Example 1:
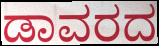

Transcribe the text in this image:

ಡಾವರದ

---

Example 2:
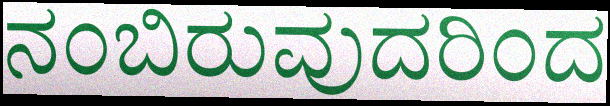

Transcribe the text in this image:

ನಂಬಿರುವುದರಿಂದ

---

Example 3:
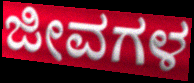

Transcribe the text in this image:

ಜೀವಗಳ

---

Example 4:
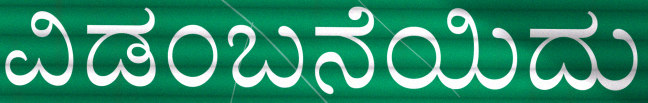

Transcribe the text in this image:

ವಿಡಂಬನೆಯಿದು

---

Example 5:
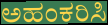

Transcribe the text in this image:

ಅಹಂಕರಿಸಿ